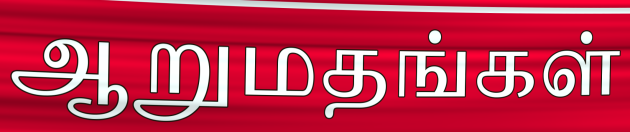
ஆறுமதங்கள்